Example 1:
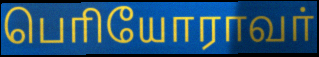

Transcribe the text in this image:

பெரியோராவர்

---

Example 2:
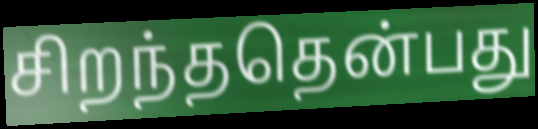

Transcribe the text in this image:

சிறந்ததென்பது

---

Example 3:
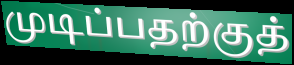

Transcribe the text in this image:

முடிப்பதற்குத்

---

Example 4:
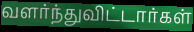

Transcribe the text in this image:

வளர்ந்துவிட்டார்கள்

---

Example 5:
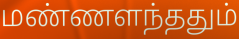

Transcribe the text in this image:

மண்ணளந்ததும்